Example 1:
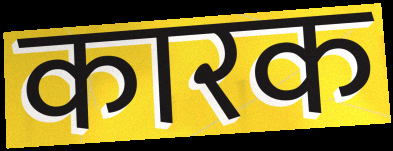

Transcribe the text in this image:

कारक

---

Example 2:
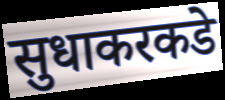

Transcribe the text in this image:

सुधाकरकडे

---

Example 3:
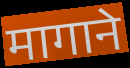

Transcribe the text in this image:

मागाने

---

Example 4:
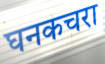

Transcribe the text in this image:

घनकचरा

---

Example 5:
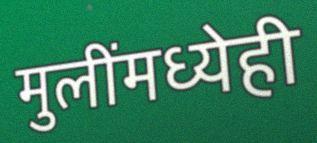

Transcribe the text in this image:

मुलींमध्येही